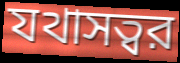
যথাসত্বর